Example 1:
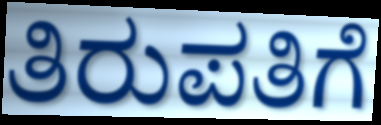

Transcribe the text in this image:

ತಿರುಪತಿಗೆ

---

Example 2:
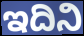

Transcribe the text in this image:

ಇದಿನಿ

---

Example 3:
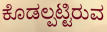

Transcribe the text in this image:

ಕೊಡಲ್ಪಟ್ಟಿರುವ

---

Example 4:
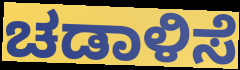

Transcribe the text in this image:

ಚಡಾಳಿಸೆ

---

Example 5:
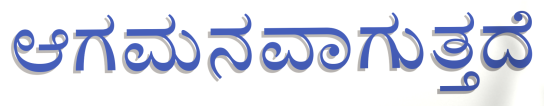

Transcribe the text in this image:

ಆಗಮನವಾಗುತ್ತದೆ